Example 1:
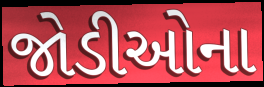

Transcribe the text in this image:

જોડીઓના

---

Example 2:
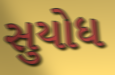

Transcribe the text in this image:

સુયોધ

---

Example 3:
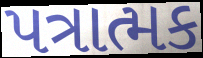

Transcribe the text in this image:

પત્રાત્મક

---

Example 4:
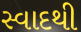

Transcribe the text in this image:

સ્વાદથી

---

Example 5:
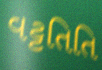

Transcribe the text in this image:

વટ્ટતિતિ